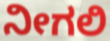
ನೀಗಲಿ